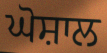
ਘੋਸ਼ਾਲ